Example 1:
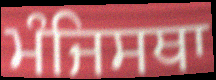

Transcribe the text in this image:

ਮੰਜਿਸਥਾ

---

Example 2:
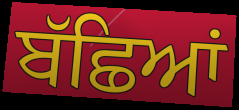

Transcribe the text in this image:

ਬੱਛਿਆਂ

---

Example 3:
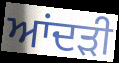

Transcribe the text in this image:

ਆਂਦੜੀ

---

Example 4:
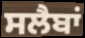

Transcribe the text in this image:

ਸਲੈਬਾਂ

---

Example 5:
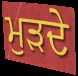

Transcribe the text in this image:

ਮੁਡ਼ਦੇ